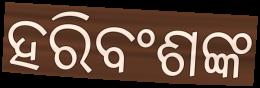
ହରିବଂଶଙ୍କ